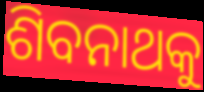
ଶିବନାଥକୁ